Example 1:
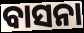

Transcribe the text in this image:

ବାସନା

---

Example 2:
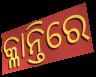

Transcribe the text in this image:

କ୍ଳାନ୍ତିରେ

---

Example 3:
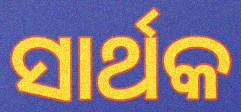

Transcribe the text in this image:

ସାର୍ଥକ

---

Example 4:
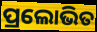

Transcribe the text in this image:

ପ୍ରଲୋଭିତ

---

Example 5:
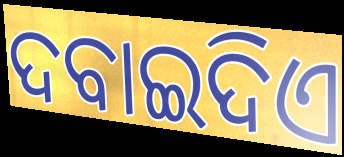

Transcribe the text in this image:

ଦବାଇଦିଏ